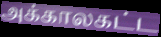
அக்காலகட்ட